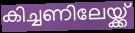
കിച്ചണിലേയ്ക്ക്